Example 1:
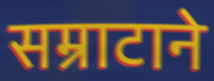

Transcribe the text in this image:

सम्राटाने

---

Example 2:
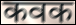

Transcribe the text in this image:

कवक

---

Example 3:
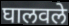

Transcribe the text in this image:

घालवले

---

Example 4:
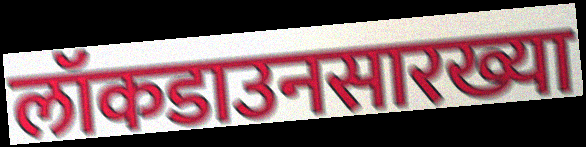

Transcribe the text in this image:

लॉकडाउनसारख्या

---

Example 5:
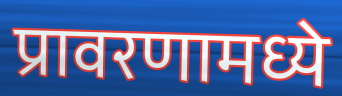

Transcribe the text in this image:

प्रावरणामध्ये